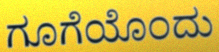
ಗೂಗೆಯೊಂದು